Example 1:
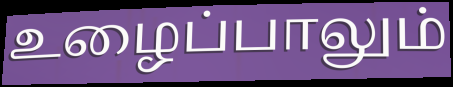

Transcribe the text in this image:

உழைப்பாலும்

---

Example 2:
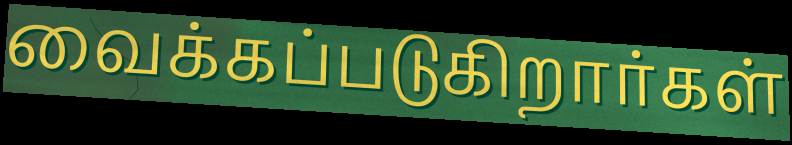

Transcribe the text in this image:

வைக்கப்படுகிறார்கள்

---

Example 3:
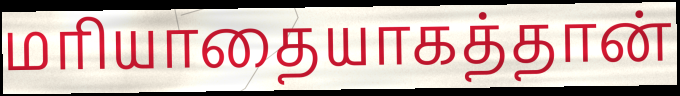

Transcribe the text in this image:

மரியாதையாகத்தான்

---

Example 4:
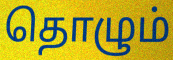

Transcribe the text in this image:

தொழும்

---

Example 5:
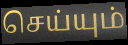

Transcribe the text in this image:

செய்யும்